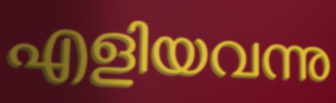
എളിയവന്നു